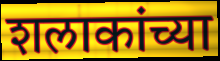
शलाकांच्या